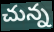
చున్న